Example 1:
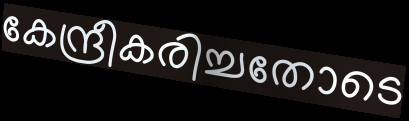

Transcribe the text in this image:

കേന്ദ്രീകരിച്ചതോടെ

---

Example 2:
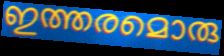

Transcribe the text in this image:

ഇത്തരമൊരു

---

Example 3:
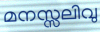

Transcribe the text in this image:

മനസ്സലിവു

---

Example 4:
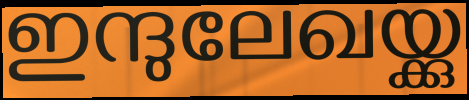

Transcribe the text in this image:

ഇന്ദുലേഖയ്ക്കു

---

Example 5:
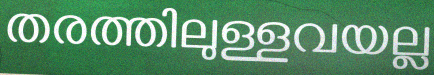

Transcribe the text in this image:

തരത്തിലുള്ളവയല്ല